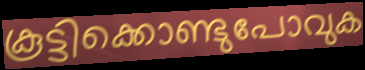
കൂട്ടിക്കൊണ്ടുപോവുക